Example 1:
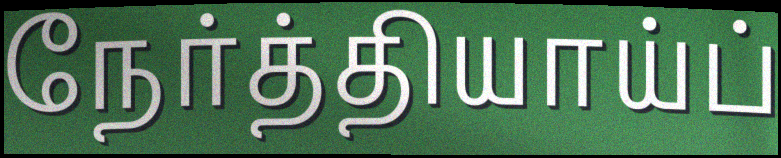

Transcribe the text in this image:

நேர்த்தியாய்ப்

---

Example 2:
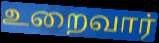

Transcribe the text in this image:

உறைவார்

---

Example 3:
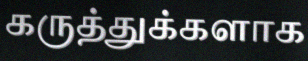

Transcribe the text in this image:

கருத்துக்களாக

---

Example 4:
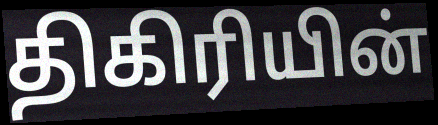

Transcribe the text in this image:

திகிரியின்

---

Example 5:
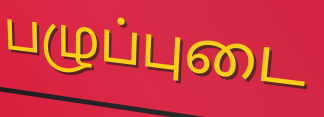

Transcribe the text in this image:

பழுப்புடை